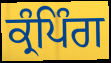
ਕ੍ਰੰਪਿੰਗ